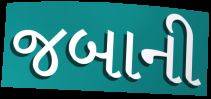
જબાની